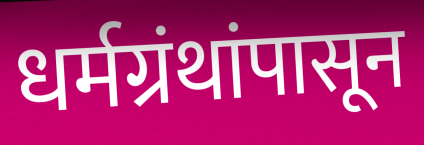
धर्मग्रंथांपासून